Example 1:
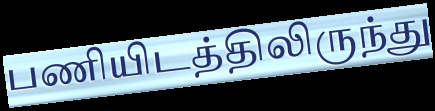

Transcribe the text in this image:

பணியிடத்திலிருந்து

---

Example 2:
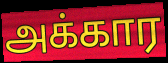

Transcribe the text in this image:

அக்கார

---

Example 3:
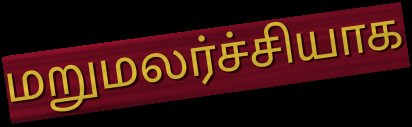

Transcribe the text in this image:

மறுமலர்ச்சியாக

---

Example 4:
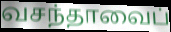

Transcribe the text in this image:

வசந்தாவைப்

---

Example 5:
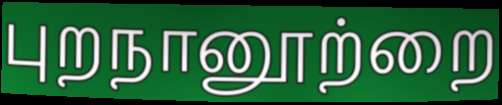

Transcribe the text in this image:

புறநானூற்றை